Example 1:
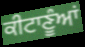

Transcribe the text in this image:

ਕੀਟਾਣੂੰਆਂ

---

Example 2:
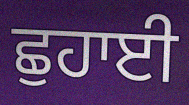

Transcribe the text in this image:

ਛੁਹਾਈ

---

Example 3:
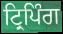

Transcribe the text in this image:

ਟ੍ਰਿਪਿੰਗ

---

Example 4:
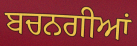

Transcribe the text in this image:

ਬਚਨਗੀਆਂ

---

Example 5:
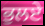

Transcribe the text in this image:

ਭੁਲਏ